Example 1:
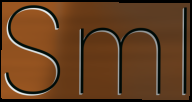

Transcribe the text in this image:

Sml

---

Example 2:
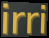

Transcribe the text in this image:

irri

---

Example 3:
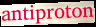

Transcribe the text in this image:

antiproton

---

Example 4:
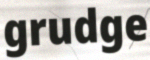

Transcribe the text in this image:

grudge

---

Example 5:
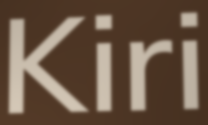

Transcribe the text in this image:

Kiri